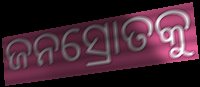
ଜନସ୍ରୋତକୁ